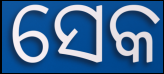
ସେକ